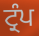
ਟ੍ਰੰਪ